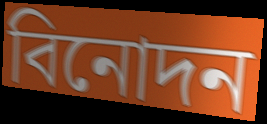
বিনোদন